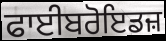
ਫਾਈਬਰੋਇਡਜ਼